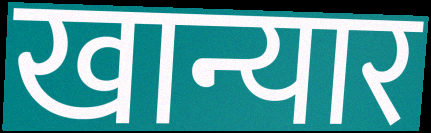
खान्यार